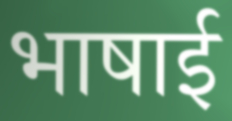
भाषाई